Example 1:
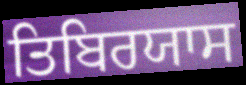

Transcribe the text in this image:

ਤਿਬਿਰਯਾਸ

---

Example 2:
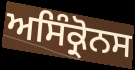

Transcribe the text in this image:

ਅਸਿੰਕ੍ਰੋਨਸ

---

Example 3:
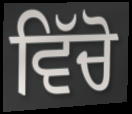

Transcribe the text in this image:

ਵਿੱਚੋ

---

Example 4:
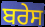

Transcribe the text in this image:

ਬਰੇਸ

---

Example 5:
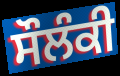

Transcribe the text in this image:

ਸੌਲੰਕੀ